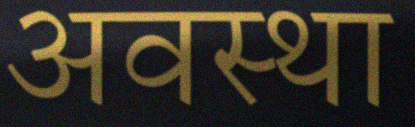
अवस्था